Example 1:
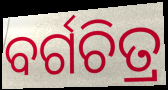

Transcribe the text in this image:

ବର୍ଗଚିତ୍ର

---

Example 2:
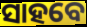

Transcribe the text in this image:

ସାହବେ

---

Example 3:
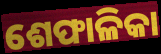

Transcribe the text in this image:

ଶେଫାଳିକା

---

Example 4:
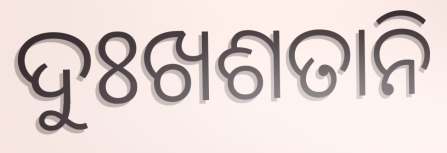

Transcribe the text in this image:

ଦୁଃଖଶତାନି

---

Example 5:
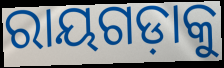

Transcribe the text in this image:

ରାୟଗଡ଼ାକୁ